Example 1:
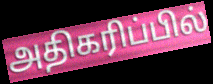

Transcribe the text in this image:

அதிகரிப்பில்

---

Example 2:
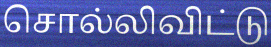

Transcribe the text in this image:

சொல்லிவிட்டு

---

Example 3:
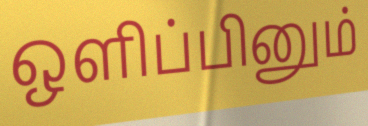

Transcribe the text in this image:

ஒளிப்பினும்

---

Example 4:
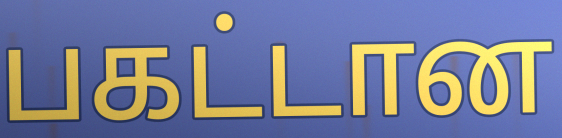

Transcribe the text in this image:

பகட்டான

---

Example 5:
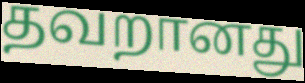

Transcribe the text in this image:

தவறானது